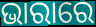
ଭାରାରେ